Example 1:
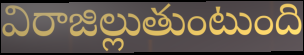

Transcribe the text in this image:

విరాజిల్లుతుంటుంది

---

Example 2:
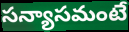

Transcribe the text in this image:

సన్యాసమంటే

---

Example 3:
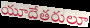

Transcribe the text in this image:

యూదేతరులూ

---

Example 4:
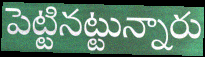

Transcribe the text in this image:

పెట్టినట్టున్నారు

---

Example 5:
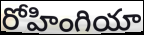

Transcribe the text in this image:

రోహింగియా